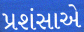
પ્રશંસાએ